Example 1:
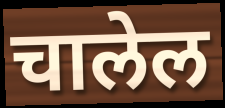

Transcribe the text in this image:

चालेल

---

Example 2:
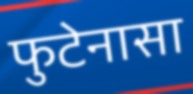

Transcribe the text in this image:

फुटेनासा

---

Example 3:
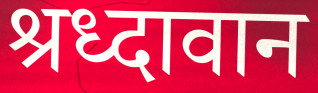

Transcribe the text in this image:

श्रध्दावान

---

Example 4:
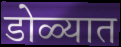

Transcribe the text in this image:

डोळ्यात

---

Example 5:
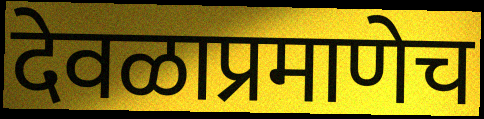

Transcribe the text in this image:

देवळाप्रमाणेच